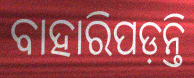
ବାହାରିପଡ଼ନ୍ତି